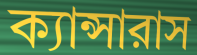
ক্যান্সারাস